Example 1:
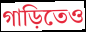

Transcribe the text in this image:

গাড়িতেও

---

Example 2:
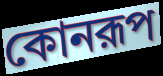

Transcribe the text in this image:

কোনরূপ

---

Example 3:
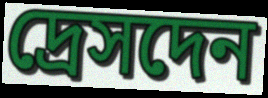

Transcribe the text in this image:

দ্রেসদেন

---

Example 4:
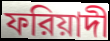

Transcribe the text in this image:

ফরিয়াদী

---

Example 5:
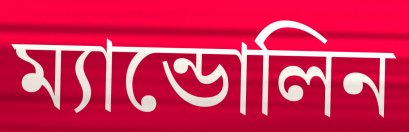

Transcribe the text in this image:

ম্যান্ডোলিন